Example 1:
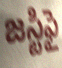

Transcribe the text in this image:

జస్టిఫై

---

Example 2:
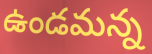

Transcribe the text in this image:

ఉండమన్న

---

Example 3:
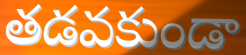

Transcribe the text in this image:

తడవకుండా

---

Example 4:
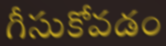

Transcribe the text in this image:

గీసుకోవడం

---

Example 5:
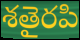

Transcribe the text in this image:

శతైరపి